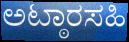
ಅಟ್ಠಾರಸಹಿ